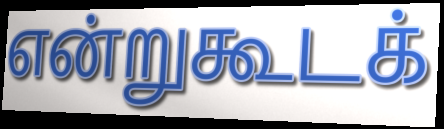
என்றுகூடக்